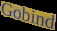
Gobind